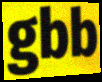
gbb